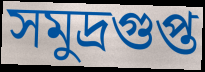
সমুদ্রগুপ্ত